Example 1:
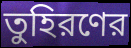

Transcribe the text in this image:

তুহিরণের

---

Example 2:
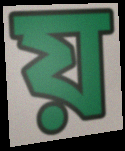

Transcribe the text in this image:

য়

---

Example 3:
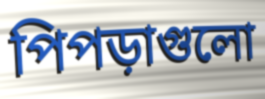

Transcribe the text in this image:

পিপড়াগুলো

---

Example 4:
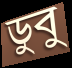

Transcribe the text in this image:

ডুবু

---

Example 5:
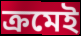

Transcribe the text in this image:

ক্রমেই